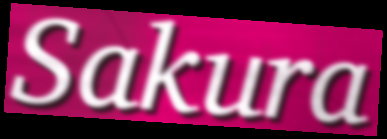
Sakura